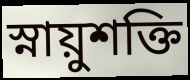
স্নায়ুশক্তি